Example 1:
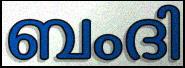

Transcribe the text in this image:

ബംദി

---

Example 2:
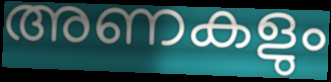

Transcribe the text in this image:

അണകളും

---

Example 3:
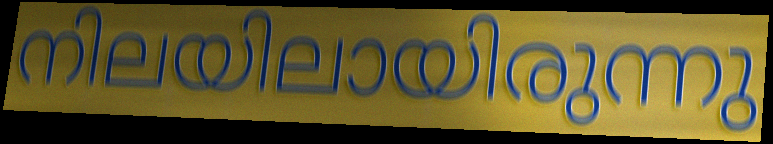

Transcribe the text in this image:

നിലയിലായിരുന്നു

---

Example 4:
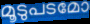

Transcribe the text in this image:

മൂടുപടമോ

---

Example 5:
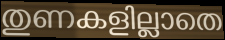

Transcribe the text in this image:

തുണകളില്ലാതെ